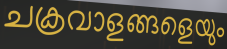
ചക്രവാളങ്ങളെയും